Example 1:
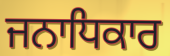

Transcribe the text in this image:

ਜਨਾਧਿਕਾਰ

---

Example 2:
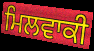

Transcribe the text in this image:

ਮਿਲਵਾਕੀ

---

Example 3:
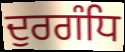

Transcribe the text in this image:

ਦੁਰਗੰਧਿ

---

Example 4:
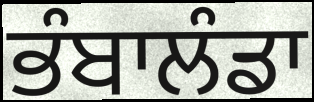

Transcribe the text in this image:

ਭੰਬਾਲੰਡਾ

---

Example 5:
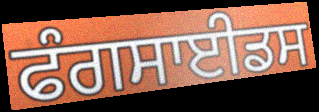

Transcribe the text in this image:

ਫੰਗਸਾਈਡਸ